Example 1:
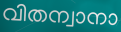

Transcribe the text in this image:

വിതന്വാനാ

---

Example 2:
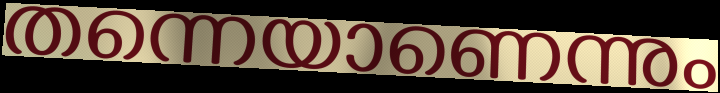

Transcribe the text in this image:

തന്നെയാണെന്നും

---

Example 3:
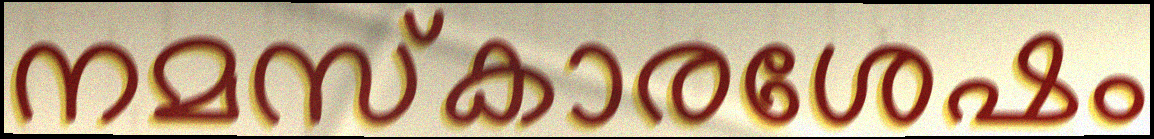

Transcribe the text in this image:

നമസ്കാരശേഷം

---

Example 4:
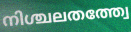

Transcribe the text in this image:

നിശ്ചലതത്ത്വേ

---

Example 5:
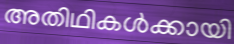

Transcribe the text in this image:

അതിഥികൾക്കായി